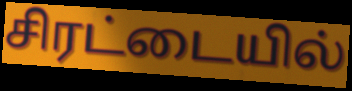
சிரட்டையில்